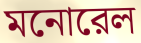
মনোরেল